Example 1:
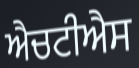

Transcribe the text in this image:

ਐਚਟੀਐਸ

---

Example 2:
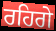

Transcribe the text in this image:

ਰਹਿਗੇ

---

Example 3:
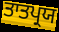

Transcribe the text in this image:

ਤਾਤਪ੍ਰਯ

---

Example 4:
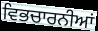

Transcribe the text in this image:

ਵਿਭਚਾਰਨੀਆਂ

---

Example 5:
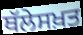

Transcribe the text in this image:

ਥੱਲੇਸਖ਼ਤ